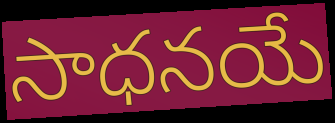
సాధనయే